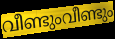
വീണ്ടുംവീണ്ടും